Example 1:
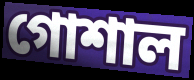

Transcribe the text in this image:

গোশাল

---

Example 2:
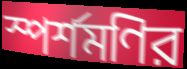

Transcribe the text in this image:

স্পর্শমণির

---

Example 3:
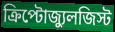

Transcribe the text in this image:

ক্রিপ্টোজ্যুলজিস্ট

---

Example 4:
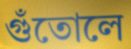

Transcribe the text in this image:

গুঁতোলে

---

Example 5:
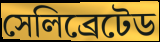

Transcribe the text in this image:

সেলিব্রেটেড